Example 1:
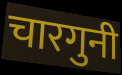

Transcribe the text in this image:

चारगुनी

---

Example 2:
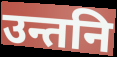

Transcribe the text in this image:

उन्तनि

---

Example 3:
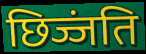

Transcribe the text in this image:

छिज्जंति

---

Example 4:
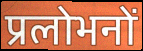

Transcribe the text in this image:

प्रलोभनों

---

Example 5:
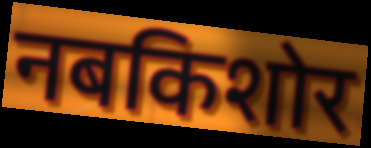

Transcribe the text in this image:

नबकिशोर